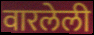
वारलेली